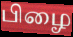
பிழை